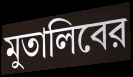
মুতালিবের